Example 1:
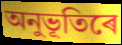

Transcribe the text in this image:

অনুভূতিৰে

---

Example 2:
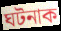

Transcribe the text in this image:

ঘটনাক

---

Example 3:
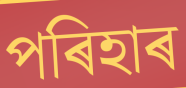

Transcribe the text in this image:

পৰিহাৰ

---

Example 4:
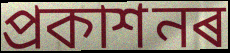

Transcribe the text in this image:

প্ৰকাশনৰ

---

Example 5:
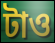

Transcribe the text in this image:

টাও